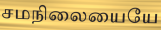
சமநிலையையே